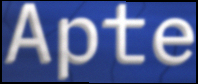
Apte